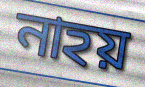
নাহয়